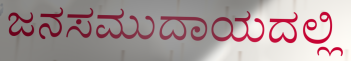
ಜನಸಮುದಾಯದಲ್ಲಿ